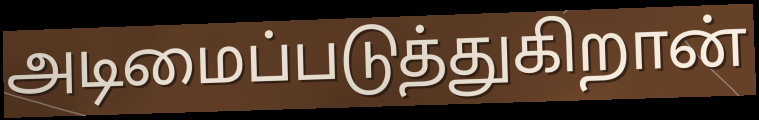
அடிமைப்படுத்துகிறான்